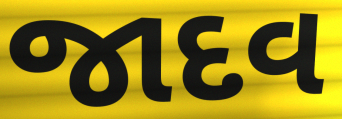
જાદવ